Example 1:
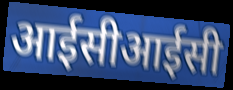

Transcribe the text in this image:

आईसीआईसी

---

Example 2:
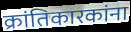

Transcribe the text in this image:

क्रांतिकारकांना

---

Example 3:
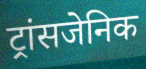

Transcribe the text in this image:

ट्रांसजेनिक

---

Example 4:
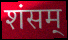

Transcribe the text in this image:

शंसम्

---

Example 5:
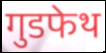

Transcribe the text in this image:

गुडफेथ